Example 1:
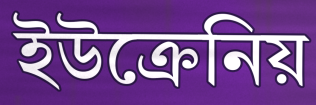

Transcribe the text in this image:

ইউক্রেনিয়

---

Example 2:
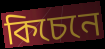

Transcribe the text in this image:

কিচেনে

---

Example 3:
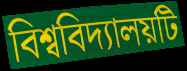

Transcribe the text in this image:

বিশ্ববিদ্যালয়টি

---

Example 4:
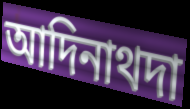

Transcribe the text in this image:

আদিনাথদা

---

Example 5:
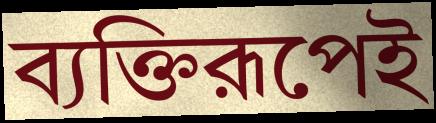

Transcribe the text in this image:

ব্যক্তিরূপেই